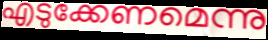
എടുക്കേണമെന്നു